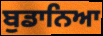
ਬੁਡਾਨਿਆ